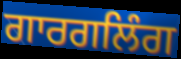
ਗਾਰਗਲਿੰਗ